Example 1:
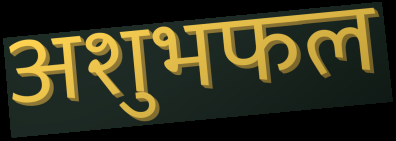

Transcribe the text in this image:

अशुभफल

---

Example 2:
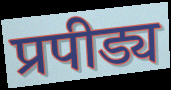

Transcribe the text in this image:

प्रपीड्य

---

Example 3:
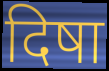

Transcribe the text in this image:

दिषा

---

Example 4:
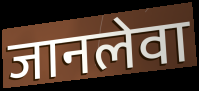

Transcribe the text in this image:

जानलेवा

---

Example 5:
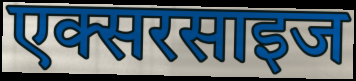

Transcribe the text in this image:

एक्‍सरसाइज